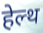
हेल्थ